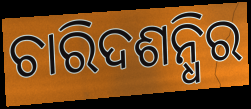
ଚାରିଦଶନ୍ଧିର